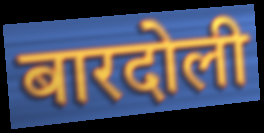
बारदोली